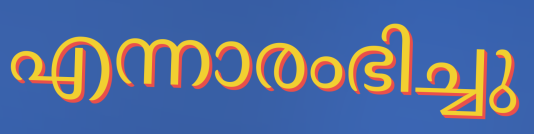
എന്നാരംഭിച്ചു